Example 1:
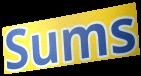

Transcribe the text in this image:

Sums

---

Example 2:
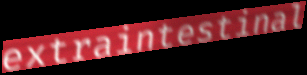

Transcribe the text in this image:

extraintestinal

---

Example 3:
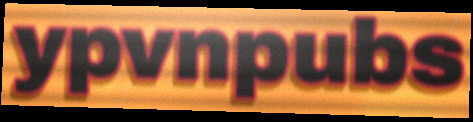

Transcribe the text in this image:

ypvnpubs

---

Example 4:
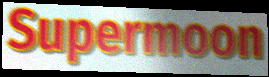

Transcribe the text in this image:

Supermoon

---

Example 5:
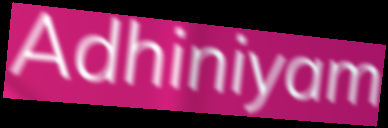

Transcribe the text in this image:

Adhiniyam